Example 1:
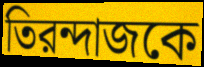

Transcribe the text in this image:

তিরন্দাজকে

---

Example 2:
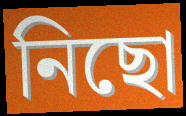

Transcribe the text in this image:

নিছো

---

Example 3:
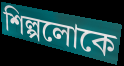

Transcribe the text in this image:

শিল্পলোকে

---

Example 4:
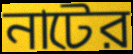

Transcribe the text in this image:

নাটের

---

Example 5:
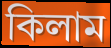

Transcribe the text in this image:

কিলাম